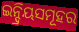
ଇନ୍ଦ୍ରିୟସମୂହର